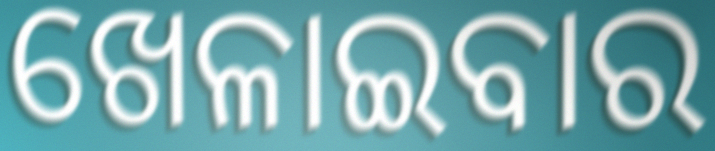
ଖେଳାଇବାର